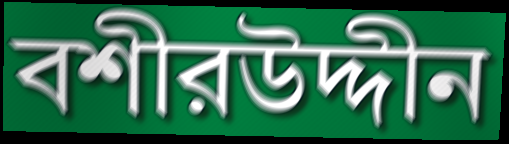
বশীরউদ্দীন